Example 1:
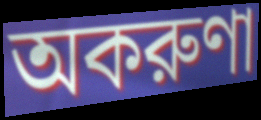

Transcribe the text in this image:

অকরুণা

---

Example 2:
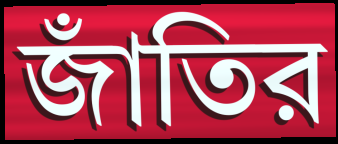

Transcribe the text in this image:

জাঁতির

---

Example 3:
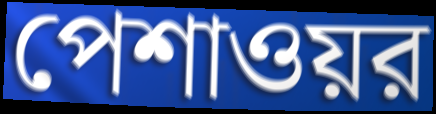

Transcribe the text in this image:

পেশাওয়র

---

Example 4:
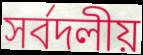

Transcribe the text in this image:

সর্বদলীয়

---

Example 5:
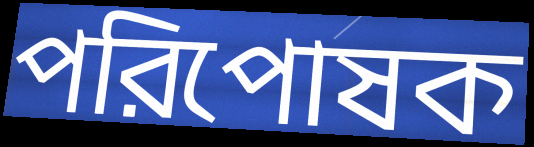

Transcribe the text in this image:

পরিপোষক